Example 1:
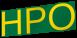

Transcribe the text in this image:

HPO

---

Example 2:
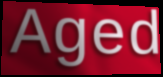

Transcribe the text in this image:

Aged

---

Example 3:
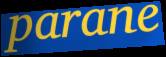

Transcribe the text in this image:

parane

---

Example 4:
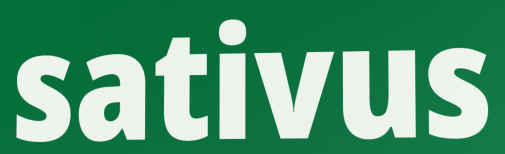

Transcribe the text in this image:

sativus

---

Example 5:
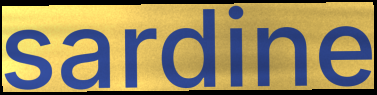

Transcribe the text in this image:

sardine